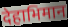
देहाभिमान